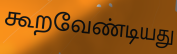
கூறவேண்டியது